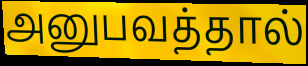
அனுபவத்தால்